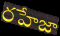
రహేజా